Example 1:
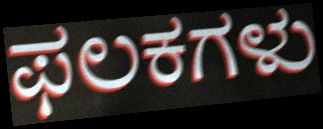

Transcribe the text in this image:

ಫಲಕಗಳು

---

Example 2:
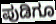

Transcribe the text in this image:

ಪುಡಿಗೂ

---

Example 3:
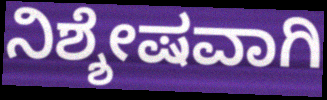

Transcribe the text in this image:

ನಿಶ್ಶೇಷವಾಗಿ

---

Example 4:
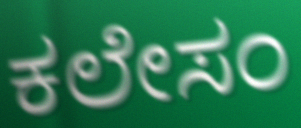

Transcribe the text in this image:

ಕಲೇಸಂ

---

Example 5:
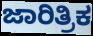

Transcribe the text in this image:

ಜಾರಿತ್ರಿಕ